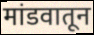
मांडवातून